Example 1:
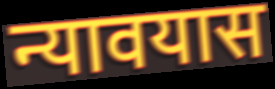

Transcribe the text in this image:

न्यावयास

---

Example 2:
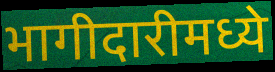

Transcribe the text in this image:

भागीदारीमध्ये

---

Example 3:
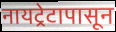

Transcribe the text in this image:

नायट्रेटापासून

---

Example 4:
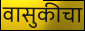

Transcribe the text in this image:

वासुकीचा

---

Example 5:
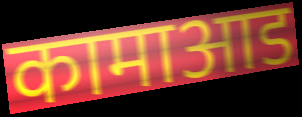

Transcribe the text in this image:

कामाआड